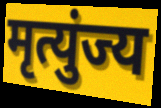
मृत्युंज्य